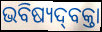
ଭବିଷ୍ୟଦ୍‌ବକ୍ତା